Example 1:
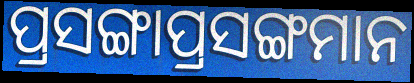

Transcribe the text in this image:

ପ୍ରସଙ୍ଗାପ୍ରସଙ୍ଗମାନ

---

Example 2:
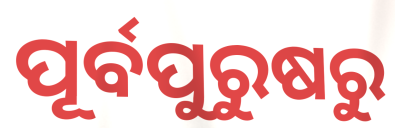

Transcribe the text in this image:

ପୂର୍ବପୁରୁଷରୁ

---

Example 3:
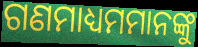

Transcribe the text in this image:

ଗଣମାଧ୍ୟମମାନଙ୍କୁ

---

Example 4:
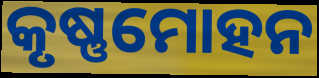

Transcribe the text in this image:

କୃଷ୍ଣମୋହନ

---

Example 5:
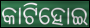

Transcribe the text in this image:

କାଟିହୋଇ